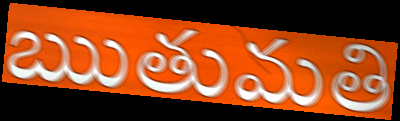
ఋతుమతి